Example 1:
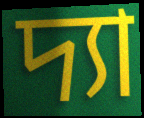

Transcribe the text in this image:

দ্যা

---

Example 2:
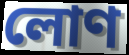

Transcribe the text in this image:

লোণ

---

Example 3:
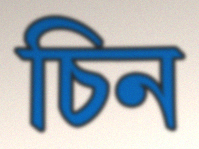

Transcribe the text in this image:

চিন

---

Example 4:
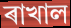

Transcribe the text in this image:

ৰাখাল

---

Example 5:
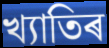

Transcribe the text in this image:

খ্যাতিৰ